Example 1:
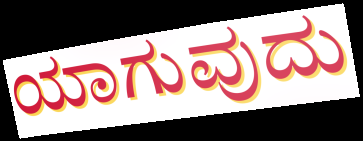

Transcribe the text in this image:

ಯಾಗುವುದು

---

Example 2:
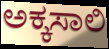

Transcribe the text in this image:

ಅಕ್ಕಸಾಲಿ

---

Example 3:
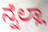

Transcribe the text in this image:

ನ್ನೆಲ್ಲಾ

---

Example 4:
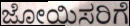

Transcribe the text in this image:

ಜೋಯಿಸರಿಗೆ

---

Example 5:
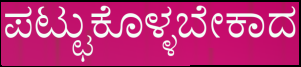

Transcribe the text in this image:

ಪಟ್ಟುಕೊಳ್ಳಬೇಕಾದ